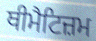
ਥੀਮੈਟਿਜ਼ਮ